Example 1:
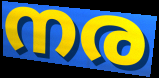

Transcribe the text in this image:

നര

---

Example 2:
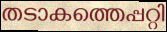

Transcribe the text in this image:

തടാകത്തെപ്പറ്റി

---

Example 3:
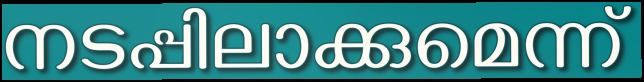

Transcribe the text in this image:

നടപ്പിലാക്കുമെന്ന്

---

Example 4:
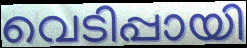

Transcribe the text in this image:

വെടിപ്പായി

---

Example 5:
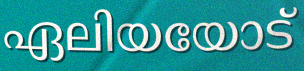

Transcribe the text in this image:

ഏലിയയോട്